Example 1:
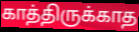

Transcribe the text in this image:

காத்திருக்காத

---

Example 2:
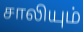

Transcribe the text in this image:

சாலியும்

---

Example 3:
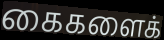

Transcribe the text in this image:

கைகளைக்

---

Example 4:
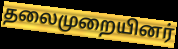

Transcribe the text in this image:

தலைமுறையினர்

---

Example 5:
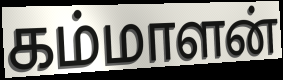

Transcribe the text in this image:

கம்மாளன்